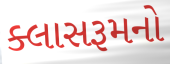
ક્લાસરૂમનો